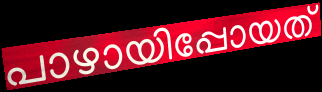
പാഴായിപ്പോയത്